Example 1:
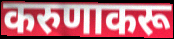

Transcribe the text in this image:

करुणाकरू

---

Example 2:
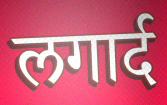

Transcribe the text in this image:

लगार्द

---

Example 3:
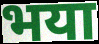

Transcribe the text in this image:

भया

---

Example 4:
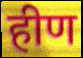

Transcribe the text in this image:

हीण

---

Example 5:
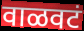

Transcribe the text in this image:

वाळवटं